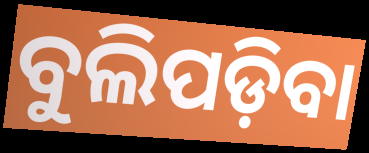
ବୁଲିପଡ଼ିବା